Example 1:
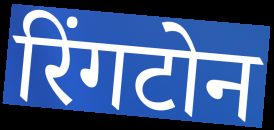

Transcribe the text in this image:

रिंगटोन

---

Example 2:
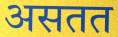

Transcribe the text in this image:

असतत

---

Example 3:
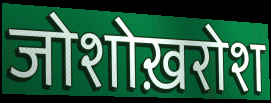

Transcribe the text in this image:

जोशोख़रोश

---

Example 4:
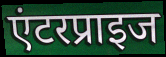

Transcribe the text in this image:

एंटरप्राइज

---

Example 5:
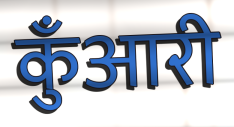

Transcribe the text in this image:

कुँआरी